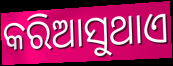
କରିଆସୁଥାଏ